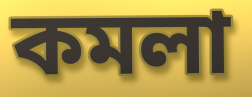
কমলা